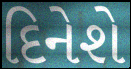
દિનેશે